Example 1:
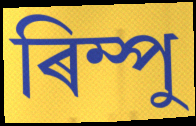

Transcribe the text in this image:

ৰিম্পু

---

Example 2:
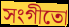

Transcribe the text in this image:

সংগীতো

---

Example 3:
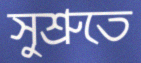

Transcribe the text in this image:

সুশ্ৰুতে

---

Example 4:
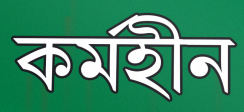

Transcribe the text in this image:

কৰ্মহীন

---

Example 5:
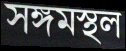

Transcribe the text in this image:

সঙ্গমস্থল